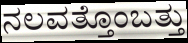
ನಲವತ್ತೊಂಬತ್ತು